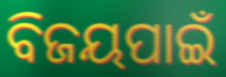
ବିଜୟପାଇଁ